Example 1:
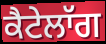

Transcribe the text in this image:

ਕੈਟੇਲਾੱਗ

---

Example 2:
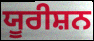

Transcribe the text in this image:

ਯੂਰੀਸ਼ਨ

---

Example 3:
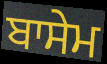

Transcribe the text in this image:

ਬਾਸੇਮ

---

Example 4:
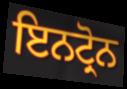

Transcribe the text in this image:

ਇਨਟ੍ਰੋਨ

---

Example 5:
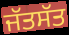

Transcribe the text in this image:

ਜੱਤਸੱਤ